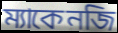
ম্যাকেনজি